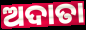
ଅଦାତା